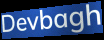
Devbagh